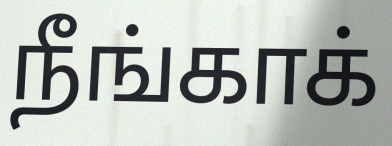
நீங்காக்